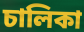
চালিকা